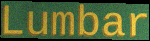
Lumbar